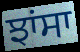
ਝਾਂਸਾ